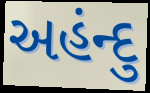
અહંન્દુ